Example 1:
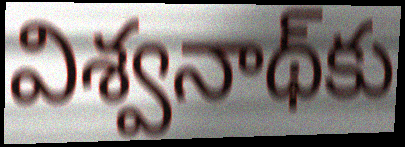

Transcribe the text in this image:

విశ్వనాథ్‌కు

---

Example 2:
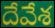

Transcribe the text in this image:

దేవేశ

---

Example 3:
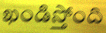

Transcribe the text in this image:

ఖండిస్తోంది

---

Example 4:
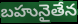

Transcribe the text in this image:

బహునైతేన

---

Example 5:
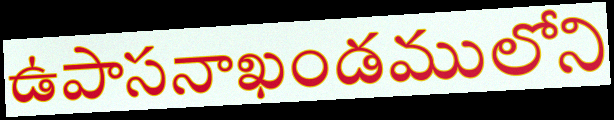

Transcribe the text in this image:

ఉపాసనాఖండములోని